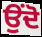
ਉਂਦੋ